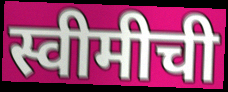
स्वीमीची